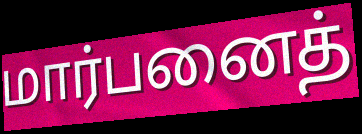
மார்பனைத்